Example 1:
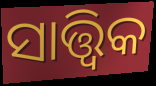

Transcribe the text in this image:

ସାତ୍ତ୍ବିକ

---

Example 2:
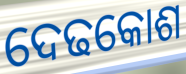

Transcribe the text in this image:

ଦେଢକୋଶ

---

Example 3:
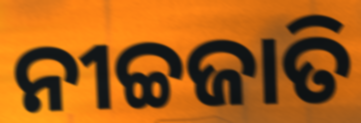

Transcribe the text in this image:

ନୀଚ୍ଚଜାତି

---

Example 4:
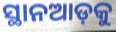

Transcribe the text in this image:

ସ୍ଥାନଆଡ଼କୁ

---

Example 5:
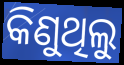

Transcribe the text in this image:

କିଣୁଥିଲୁ